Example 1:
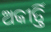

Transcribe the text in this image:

ଅକୀର୍ତ୍ତି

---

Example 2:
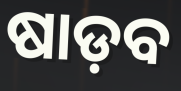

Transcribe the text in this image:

ଷାଡ଼ବ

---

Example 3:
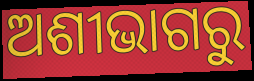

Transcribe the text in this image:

ଅଶୀଭାଗରୁ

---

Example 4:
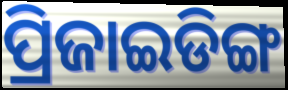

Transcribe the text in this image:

ପ୍ରିଜାଇଡିଙ୍ଗ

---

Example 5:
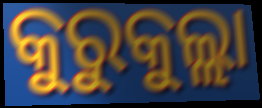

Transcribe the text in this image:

କୁରୁକୁଲ୍ଲା